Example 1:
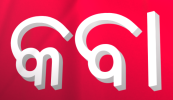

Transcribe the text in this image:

କବା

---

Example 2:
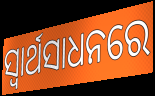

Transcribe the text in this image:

ସ୍ବାର୍ଥସାଧନରେ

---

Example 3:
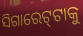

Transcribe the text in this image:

ସିଗାରେଟ୍‍ଟାକୁ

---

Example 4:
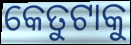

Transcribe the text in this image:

କେତୁଟାକୁ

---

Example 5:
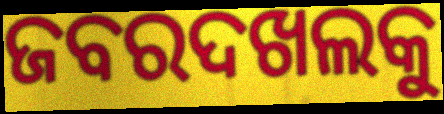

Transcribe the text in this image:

ଜବରଦଖଲକୁ